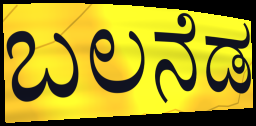
ಬಲನೆಡ